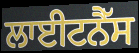
ਲਾਈਟਨੈੱਸ